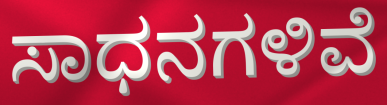
ಸಾಧನಗಳಿವೆ